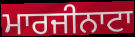
ਮਾਰਜੀਨਾਟਾ